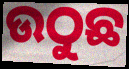
ଉଠୁଛ